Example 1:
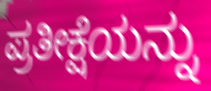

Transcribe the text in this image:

ಪ್ರತೀಕ್ಷೆಯನ್ನು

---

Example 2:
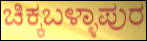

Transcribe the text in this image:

ಚಿಕ್ಕಬಳ್ಳಾಪುರ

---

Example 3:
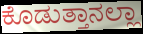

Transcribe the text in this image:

ಕೊಡುತ್ತಾನಲ್ಲಾ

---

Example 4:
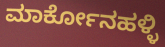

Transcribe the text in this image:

ಮಾರ್ಕೋನಹಳ್ಳಿ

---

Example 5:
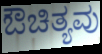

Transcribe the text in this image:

ಔಚಿತ್ಯವು